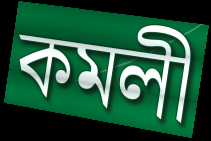
কমলী